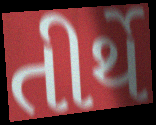
તીર્થે